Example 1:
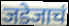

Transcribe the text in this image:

जडेजाचं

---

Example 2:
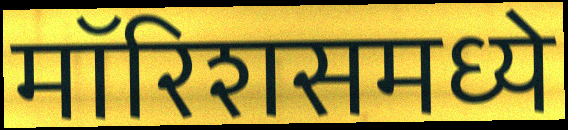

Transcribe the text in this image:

मॉरिशसमध्ये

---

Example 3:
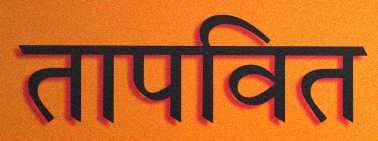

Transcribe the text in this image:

तापवित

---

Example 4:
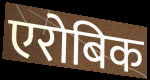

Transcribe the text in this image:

एरोबिक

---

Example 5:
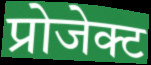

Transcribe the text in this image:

प्रोजेक्ट